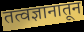
तत्वज्ञानातून